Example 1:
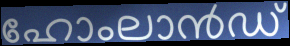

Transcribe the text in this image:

ഹോംലാൻഡ്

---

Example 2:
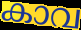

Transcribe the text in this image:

കാവ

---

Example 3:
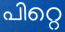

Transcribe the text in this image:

പിറ്റെ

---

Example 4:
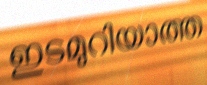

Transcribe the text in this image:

ഇടമുറിയാത്ത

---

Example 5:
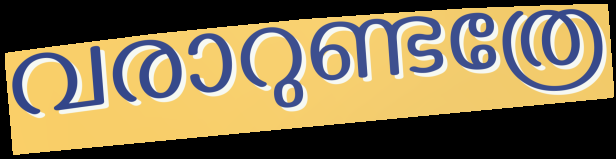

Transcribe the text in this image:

വരാറുണ്ടത്രേ